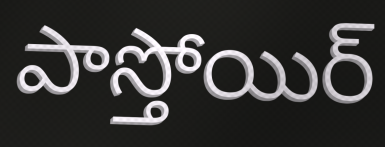
పాస్తోయిర్